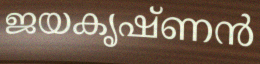
ജയകൃഷ്ണൻ